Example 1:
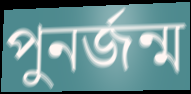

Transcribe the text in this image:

পুনৰ্জন্ম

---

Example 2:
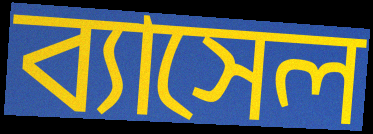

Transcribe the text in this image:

ব্যাসেল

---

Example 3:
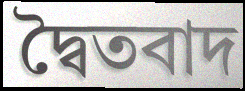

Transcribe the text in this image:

দ্বৈতবাদ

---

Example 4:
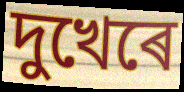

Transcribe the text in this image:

দুখেৰে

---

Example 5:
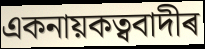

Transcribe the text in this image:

একনায়কত্ববাদীৰ